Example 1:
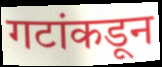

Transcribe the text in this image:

गटांकडून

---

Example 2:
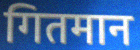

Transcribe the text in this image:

गितमान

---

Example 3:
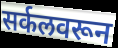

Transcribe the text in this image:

सर्कलवरून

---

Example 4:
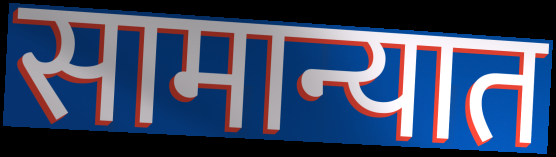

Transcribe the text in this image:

सामान्यात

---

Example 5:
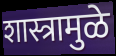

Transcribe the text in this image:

शास्त्रामुळे